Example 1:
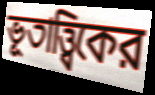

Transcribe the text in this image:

ভূতাত্ত্বিকের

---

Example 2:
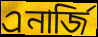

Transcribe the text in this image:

এনার্জি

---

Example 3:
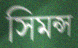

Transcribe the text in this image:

সিমন্স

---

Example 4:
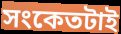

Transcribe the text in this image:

সংকেতটাই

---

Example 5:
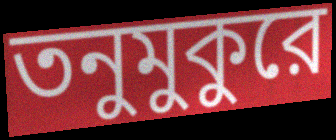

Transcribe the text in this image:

তনুমুকুরে